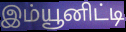
இம்யூனிட்டி